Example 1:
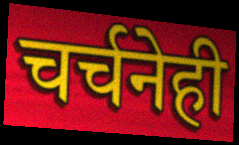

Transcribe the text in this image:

चर्चनेही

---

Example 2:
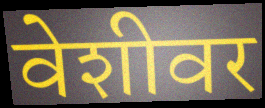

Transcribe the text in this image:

वेशीवर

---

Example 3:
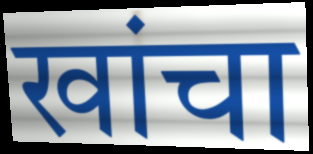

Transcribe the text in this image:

खांचा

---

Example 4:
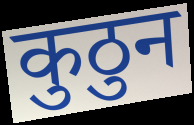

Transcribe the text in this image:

कुठुन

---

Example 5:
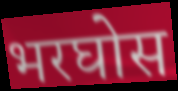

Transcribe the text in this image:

भरघोस